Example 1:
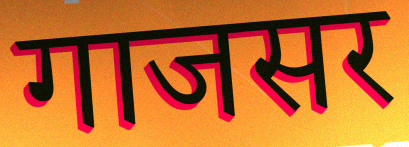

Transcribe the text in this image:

गाजसर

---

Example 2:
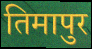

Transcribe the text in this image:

तिमापुर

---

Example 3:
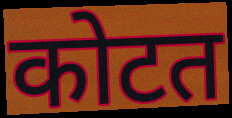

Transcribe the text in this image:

कोटत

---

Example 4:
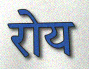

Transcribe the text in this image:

रोय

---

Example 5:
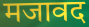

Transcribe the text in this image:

मजावद